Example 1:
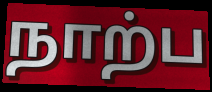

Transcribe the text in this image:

நாற்ப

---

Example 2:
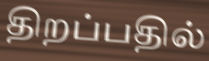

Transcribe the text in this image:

திறப்பதில்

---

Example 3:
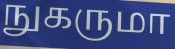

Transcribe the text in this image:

நுகருமா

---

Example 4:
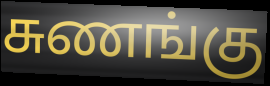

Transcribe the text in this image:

சுணங்கு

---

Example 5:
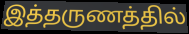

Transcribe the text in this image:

இத்தருணத்தில்